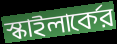
স্কাইলার্কের